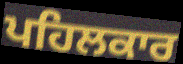
ਪਹਿਲਕਾਰ